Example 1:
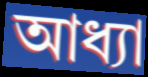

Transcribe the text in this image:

আধ্যা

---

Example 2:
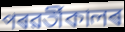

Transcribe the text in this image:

পৰৱৰ্তীকালৰ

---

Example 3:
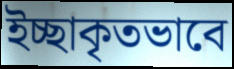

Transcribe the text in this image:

ইচ্ছাকৃতভাবে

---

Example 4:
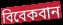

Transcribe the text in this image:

বিবেকবান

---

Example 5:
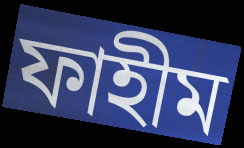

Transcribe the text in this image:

ফাহীম